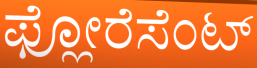
ಫ್ಲೋರೆಸೆಂಟ್